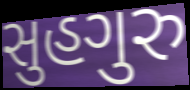
સુહગુરુ